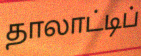
தாலாட்டிப்